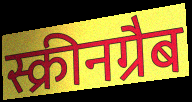
स्क्रीनग्रैब